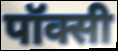
पॉक्सी